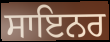
ਸਾਇਨਰ